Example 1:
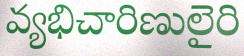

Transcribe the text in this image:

వ్యభిచారిణులైరి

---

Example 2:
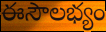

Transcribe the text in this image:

ఈసౌలభ్యం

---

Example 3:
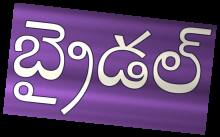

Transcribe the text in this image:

బ్రైడల్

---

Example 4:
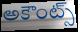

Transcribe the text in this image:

అకౌంట్స్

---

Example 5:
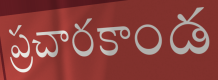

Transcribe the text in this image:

ప్రచారకాండ